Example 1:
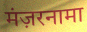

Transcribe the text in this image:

मंज़रनामा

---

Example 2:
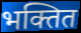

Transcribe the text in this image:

भक्तित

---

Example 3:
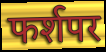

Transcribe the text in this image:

फर्शपर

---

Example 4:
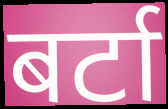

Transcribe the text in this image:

बर्टा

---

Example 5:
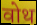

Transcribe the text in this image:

वोथ